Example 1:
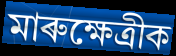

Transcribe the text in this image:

মাৰুক্ষেত্ৰীক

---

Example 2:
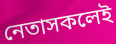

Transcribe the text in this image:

নেতাসকলেই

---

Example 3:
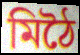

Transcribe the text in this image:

মিঠৈ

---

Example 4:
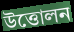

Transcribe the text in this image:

উত্তোলন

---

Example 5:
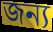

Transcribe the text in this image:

জন্য